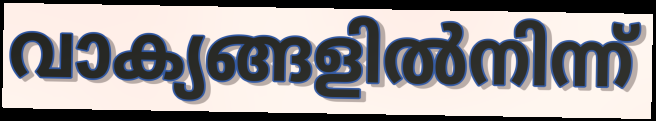
വാക്യങ്ങളിൽനിന്ന്